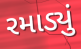
રમાડ્યું